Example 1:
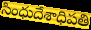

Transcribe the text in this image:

సింధుదేశాధిపతి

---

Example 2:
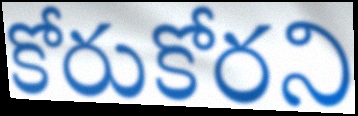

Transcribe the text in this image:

కోరుకోరని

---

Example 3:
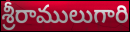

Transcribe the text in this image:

శ్రీరాములుగారి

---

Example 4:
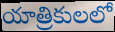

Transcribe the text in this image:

యాత్రికులలో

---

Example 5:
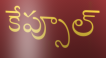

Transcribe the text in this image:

కేప్సూల్